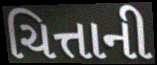
ચિત્તાની